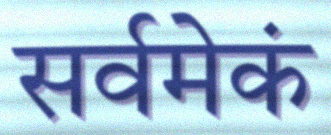
सर्वमेकं